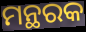
ମନ୍ଥରକ